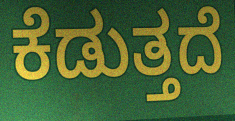
ಕೆಡುತ್ತದೆ